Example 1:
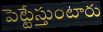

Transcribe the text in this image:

పెట్టేస్తుంటారు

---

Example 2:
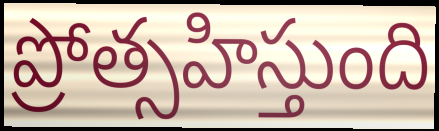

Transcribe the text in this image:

ప్రోత్సహిస్తుంది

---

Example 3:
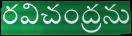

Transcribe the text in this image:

రవిచంద్రను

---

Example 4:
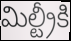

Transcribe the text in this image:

మిల్ట్రీకి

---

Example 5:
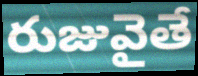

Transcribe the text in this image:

రుజువైతే